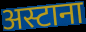
अस्टाना